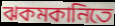
ঝকমকানিতে